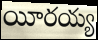
యీరయ్య